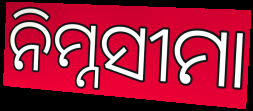
ନିମ୍ନସୀମା